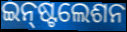
ଇନ୍‌ଷ୍ଟଲେଶନ